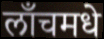
लाँचमधे